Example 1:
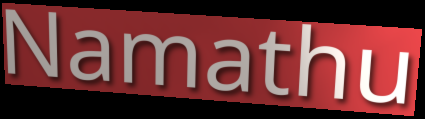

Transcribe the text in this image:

Namathu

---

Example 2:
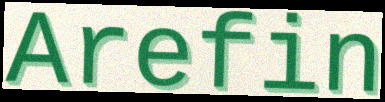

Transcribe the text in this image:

Arefin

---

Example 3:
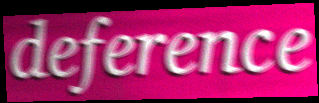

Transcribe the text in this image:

deference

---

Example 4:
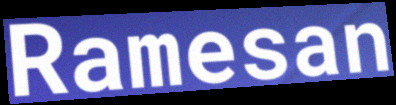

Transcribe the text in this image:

Ramesan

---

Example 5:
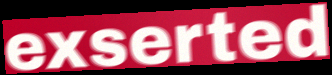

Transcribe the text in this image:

exserted